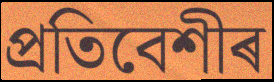
প্ৰতিবেশীৰ